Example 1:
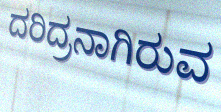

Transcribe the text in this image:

ದರಿದ್ರನಾಗಿರುವ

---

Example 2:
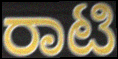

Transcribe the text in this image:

ರಾಟಿ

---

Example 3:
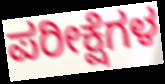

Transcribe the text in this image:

ಪರೀಕ್ಷೆಗಳ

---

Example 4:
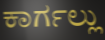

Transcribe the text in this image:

ಕಾರ್ಗಲ್ಲು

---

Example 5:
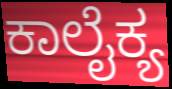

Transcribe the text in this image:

ಕಾಲೈಕ್ಯ